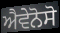
ਐਵੇਨੋਸੋ